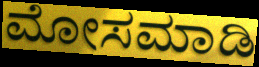
ಮೋಸಮಾಡಿ